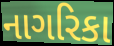
નાગરિકા